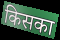
किसका